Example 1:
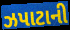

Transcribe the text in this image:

ઝપાટાની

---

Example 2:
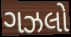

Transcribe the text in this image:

ગઝલો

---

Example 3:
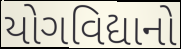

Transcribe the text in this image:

યોગવિદ્યાનો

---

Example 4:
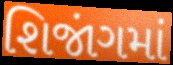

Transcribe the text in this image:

શિજાંગમાં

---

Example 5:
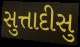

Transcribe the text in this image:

સુત્તાદીસુ